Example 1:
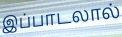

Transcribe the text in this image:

இப்பாடலால்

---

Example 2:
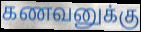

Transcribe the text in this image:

கணவனுக்கு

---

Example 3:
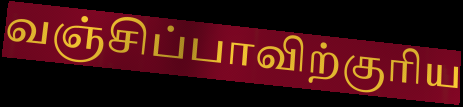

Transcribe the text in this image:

வஞ்சிப்பாவிற்குரிய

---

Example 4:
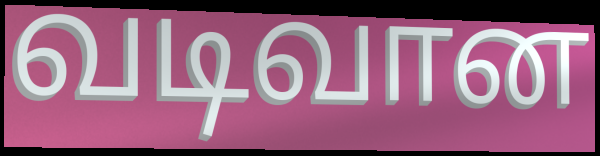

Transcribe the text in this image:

வடிவான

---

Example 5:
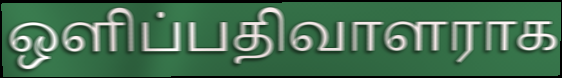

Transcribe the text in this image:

ஒளிப்பதிவாளராக